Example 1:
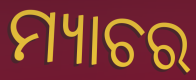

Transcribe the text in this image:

ମ୍ୟାଚର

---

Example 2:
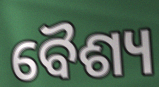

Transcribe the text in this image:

ବୈଶ୍ୟ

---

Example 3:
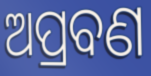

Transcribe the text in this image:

ଅପ୍ରବଣ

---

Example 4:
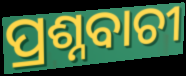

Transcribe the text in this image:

ପ୍ରଶ୍ନବାଚୀ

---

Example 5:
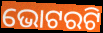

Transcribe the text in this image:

ଭୋଟରଟି